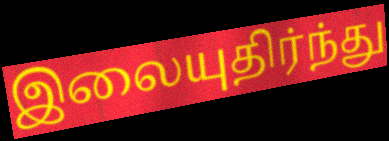
இலையுதிர்ந்து